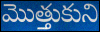
మొత్తుకుని